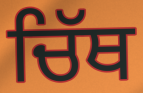
ਚਿੱਥ